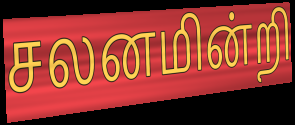
சலனமின்றி